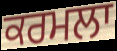
ਕਰਮਲਾ